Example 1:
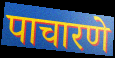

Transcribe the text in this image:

पाचारणे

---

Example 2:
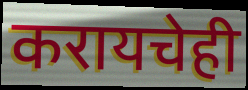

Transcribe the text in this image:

करायचेही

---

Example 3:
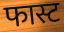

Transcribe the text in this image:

फास्ट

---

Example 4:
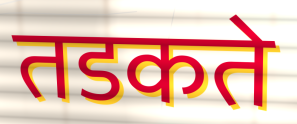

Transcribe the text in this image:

तडकते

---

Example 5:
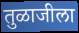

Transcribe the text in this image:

तुळाजीला